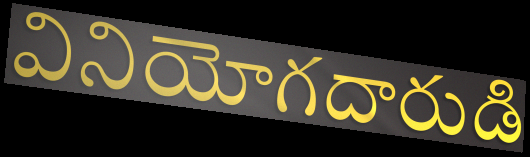
వినియోగదారుడి